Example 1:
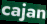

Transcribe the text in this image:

cajan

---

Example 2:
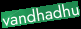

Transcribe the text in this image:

vandhadhu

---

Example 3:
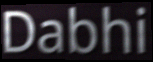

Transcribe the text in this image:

Dabhi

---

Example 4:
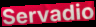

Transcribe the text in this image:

Servadio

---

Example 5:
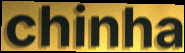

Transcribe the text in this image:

chinha